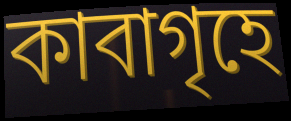
কাবাগৃহে